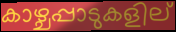
കാഴ്ചപ്പാടുകളില്